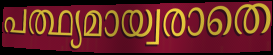
പത്ഥ്യമായ്വരാതെ